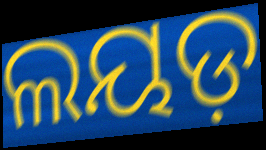
ଲୟଡ଼